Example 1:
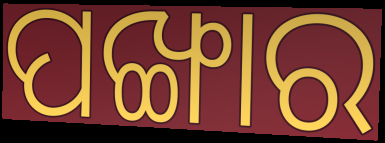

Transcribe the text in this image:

ପଙ୍ଖାର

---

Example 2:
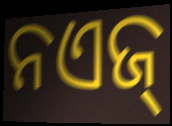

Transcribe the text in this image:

ନଏଜ୍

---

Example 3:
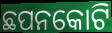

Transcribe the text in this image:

ଛପନକୋଟି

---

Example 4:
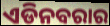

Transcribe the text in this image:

ଏଡିନବରାର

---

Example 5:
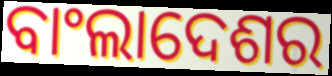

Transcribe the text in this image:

ବାଂଲାଦେଶର